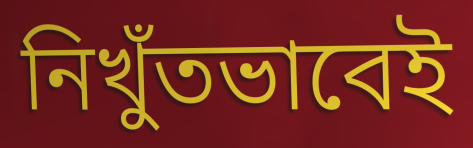
নিখুঁতভাবেই